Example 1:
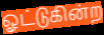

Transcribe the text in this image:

ஓட்டுகின்ற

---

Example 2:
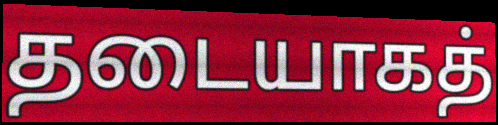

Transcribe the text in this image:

தடையாகத்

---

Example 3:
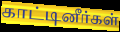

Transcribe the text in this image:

காட்டினீர்கள்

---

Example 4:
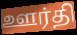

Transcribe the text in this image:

ஊர்தி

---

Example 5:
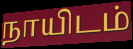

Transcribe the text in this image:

நாயிடம்